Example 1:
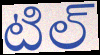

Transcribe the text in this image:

టిల్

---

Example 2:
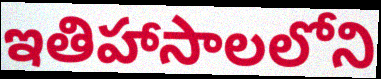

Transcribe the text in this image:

ఇతిహాసాలలోని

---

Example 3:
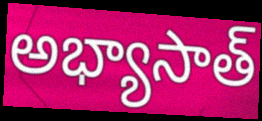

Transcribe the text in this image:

అభ్యాసాత్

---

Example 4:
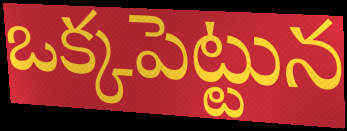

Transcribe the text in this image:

ఒక్కపెట్టున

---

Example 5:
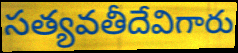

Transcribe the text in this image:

సత్యవతీదేవిగారు